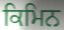
ਕਿਮਿਨ